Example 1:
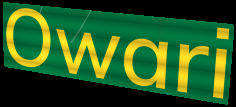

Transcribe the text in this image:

Owari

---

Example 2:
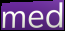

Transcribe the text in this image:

med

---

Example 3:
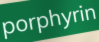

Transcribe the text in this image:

porphyrin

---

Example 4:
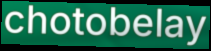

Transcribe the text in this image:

chotobelay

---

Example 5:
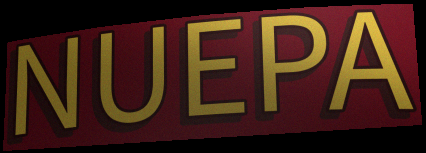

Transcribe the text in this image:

NUEPA